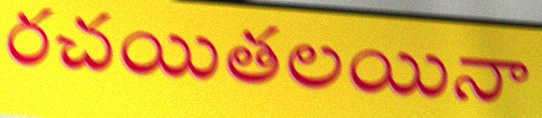
రచయితలయినా